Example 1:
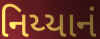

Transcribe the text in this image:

નિય્યાનં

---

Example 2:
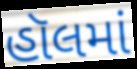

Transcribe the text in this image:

હૉલમાં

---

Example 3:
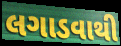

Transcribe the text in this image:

લગાડવાથી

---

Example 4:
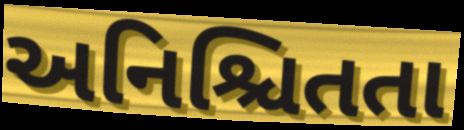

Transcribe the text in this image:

અનિશ્ચિતતા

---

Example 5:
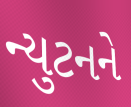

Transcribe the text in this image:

ન્યુટનને